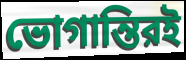
ভোগান্তিরই